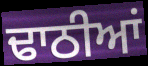
ਢਾਠੀਆਂ